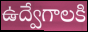
ఉద్వేగాలకి